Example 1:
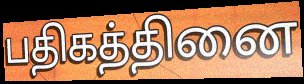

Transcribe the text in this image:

பதிகத்தினை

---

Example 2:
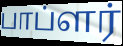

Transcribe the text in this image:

பாப்ளர்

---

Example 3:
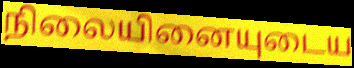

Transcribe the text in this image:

நிலையினையுடைய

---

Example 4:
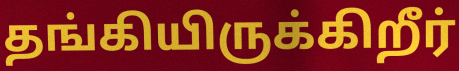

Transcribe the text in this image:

தங்கியிருக்கிறீர்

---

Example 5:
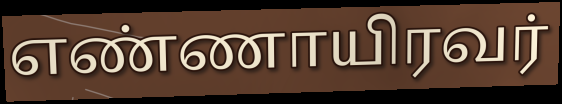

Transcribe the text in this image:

எண்ணாயிரவர்